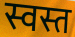
स्वस्त